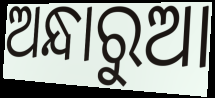
ଅନ୍ଧାରୁଆ